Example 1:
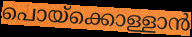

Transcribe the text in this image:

പൊയ്ക്കൊള്ളാൻ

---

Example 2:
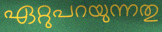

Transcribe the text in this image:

ഏറ്റുപറയുന്നതു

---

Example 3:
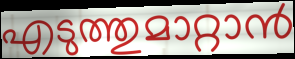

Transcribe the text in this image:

എടുത്തുമാറ്റാൻ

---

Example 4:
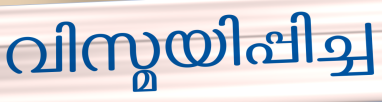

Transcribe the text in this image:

വിസ്മയിപ്പിച്ച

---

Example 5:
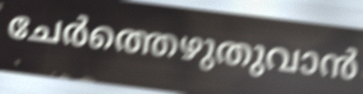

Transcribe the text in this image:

ചേർത്തെഴുതുവാൻ